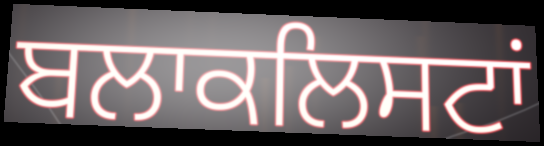
ਬਲਾਕਲਿਸਟਾਂ